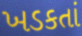
ખડકતાં